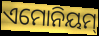
ଏମୋନିୟମ୍